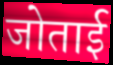
जोताई